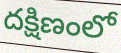
దక్షిణంలో